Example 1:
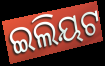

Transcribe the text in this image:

ଇଲିୟଟ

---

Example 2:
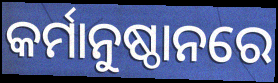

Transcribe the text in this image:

କର୍ମାନୁଷ୍ଠାନରେ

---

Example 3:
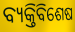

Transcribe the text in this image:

ବ୍ୟକ୍ତିବିଶେଷ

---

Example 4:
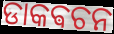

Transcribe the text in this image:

ଡାକଵଚନ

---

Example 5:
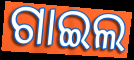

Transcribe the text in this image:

ଗାଇଲ